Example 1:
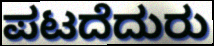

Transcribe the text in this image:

ಪಟದೆದುರು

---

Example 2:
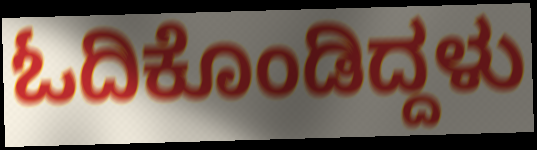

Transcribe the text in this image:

ಓದಿಕೊಂಡಿದ್ದಳು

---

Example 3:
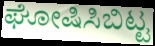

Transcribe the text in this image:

ಘೋಷಿಸಿಬಿಟ್ಟ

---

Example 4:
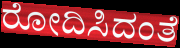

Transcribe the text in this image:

ರೋದಿಸಿದಂತೆ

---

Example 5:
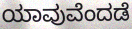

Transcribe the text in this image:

ಯಾವುವೆಂದಡೆ